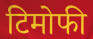
टिमोफी